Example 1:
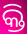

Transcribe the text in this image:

କ୍ତି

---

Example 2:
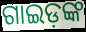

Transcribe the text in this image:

ଗାଇଡ଼ଙ୍କ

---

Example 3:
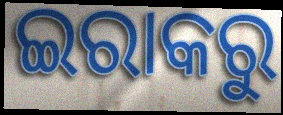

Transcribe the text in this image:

ଇରାକରୁ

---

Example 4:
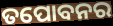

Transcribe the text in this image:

ତପୋବନର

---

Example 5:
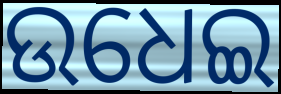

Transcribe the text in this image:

ଉଧେଇ